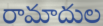
రామాదుల